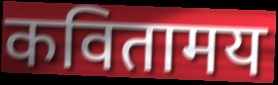
कवितामय